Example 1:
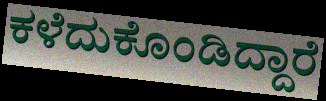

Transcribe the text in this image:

ಕಳೆದುಕೊಂಡಿದ್ದಾರೆ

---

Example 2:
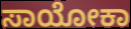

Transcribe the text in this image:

ಸಾಯೋಕಾ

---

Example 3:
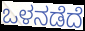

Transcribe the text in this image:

ಒಳನಡೆದೆ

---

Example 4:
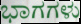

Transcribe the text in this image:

ಭಾಗಗಳು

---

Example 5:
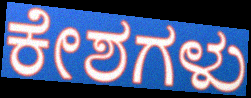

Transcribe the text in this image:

ಕೇಶಗಳು